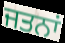
ਜਤਨਾਂ